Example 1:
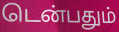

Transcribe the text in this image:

டென்பதும்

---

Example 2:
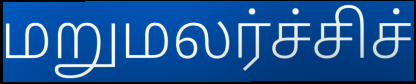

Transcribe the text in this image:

மறுமலர்ச்சிச்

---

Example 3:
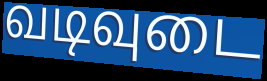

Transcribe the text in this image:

வடிவுடை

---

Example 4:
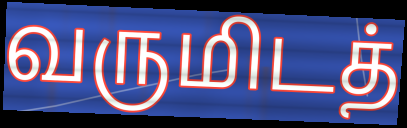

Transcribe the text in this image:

வருமிடத்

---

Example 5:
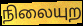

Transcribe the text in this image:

நிலையுற